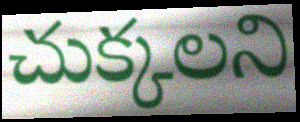
చుక్కలని